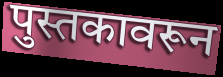
पुस्तकावरून